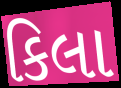
કિલા